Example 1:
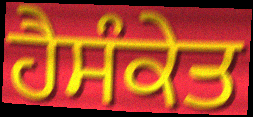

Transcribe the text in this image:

ਹੈਸੰਕੇਤ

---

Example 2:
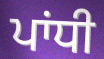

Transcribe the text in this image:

ਪਾਂਧੀ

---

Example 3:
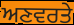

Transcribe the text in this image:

ਅਣਵਰਤੇ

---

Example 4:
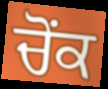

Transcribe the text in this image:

ਚੋਂਕ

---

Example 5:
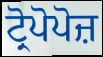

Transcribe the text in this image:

ਟ੍ਰੋਪੋਪੋਜ਼